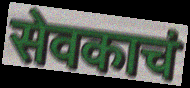
सेवकाचं